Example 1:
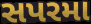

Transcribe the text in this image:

સપરમા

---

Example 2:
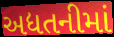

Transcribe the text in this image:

અદ્યતનીમાં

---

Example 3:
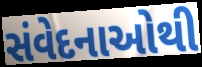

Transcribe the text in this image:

સંવેદનાઓથી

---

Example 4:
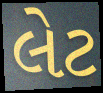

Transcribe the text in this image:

લેટ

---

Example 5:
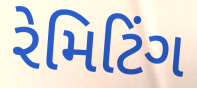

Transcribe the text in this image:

રેમિટિંગ